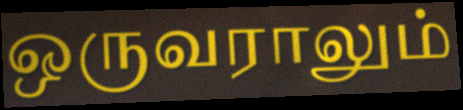
ஒருவராலும்